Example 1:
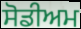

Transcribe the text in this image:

ਸੋਡੀਅਮ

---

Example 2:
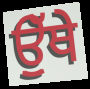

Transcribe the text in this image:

ਉੁੱਥੇ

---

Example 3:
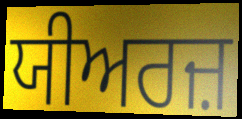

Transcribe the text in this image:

ਯੀਅਰਜ਼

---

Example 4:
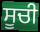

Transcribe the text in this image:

ਸੂਚੀ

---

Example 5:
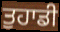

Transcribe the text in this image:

ਤੁਹਾਡੀ